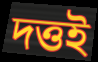
দত্তই